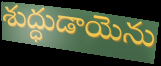
శుద్ధుడాయెను